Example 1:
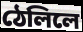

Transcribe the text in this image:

ঠেলিলে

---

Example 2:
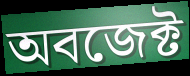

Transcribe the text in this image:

অবজেক্ট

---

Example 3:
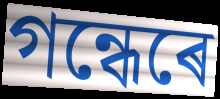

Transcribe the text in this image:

গন্ধেৰে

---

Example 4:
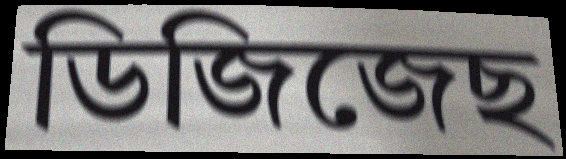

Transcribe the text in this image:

ডিজিজেছ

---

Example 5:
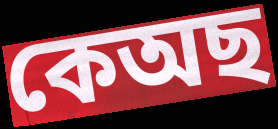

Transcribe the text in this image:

কেঅছ